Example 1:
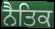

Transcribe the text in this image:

ਨੈਤਿਕ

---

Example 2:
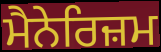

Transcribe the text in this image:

ਮੈਨੇਰਿਜ਼ਮ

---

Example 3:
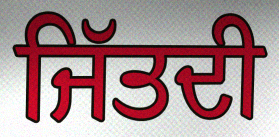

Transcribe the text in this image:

ਜਿੱਤਦੀ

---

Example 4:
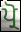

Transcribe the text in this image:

ਪ੍ਰੋ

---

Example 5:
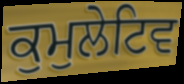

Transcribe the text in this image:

ਕੁਮੁਲੇਟਿਵ